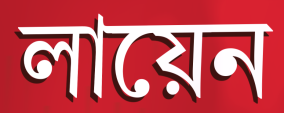
লায়েন